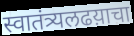
स्वातंत्र्यलढय़ाचा